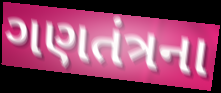
ગણતંત્રના